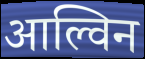
आल्विन